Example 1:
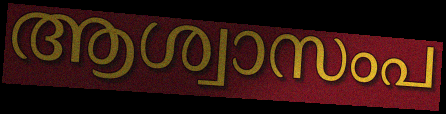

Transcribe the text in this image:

ആശ്വാസംപ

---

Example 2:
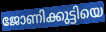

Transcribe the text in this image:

ജോണിക്കുട്ടിയെ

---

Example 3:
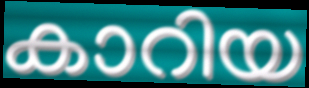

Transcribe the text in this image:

കാറിയ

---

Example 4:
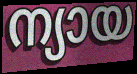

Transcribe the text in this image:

ന്യായ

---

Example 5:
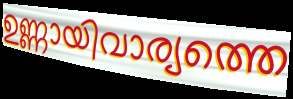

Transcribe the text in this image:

ഉണ്ണായിവാര്യത്തെ